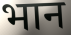
भान